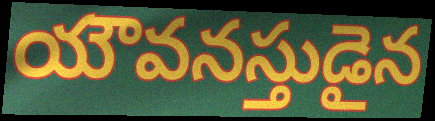
యౌవనస్తుడైన